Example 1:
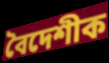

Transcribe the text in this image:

বৈদেশীক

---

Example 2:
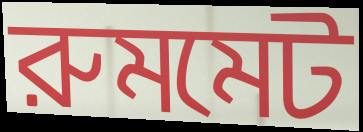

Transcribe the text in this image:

ৰুমমেট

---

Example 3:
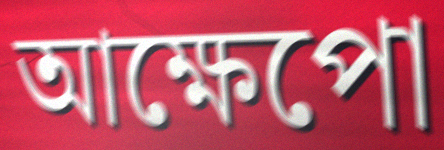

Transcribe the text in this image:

আক্ষেপো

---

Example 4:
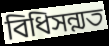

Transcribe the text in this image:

বিধিসন্মত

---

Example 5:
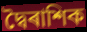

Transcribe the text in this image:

দ্বৈৰাশিক